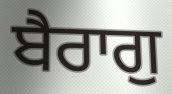
ਬੈਰਾਗੁ